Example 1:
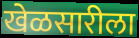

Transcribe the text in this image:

खेळसारीला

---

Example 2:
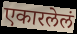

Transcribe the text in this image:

एकारलेलं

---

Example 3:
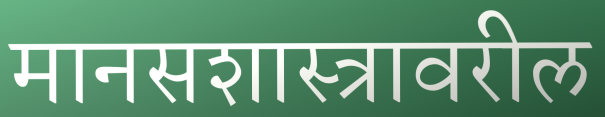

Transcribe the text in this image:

मानसशास्त्रावरील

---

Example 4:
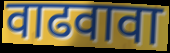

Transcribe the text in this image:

वाढवावा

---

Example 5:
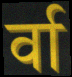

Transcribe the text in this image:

र्वा